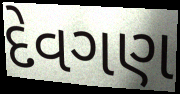
દેવગણ